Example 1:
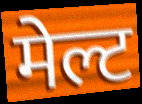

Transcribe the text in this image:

मेल्ट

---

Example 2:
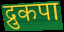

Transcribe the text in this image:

द्रुकपा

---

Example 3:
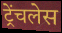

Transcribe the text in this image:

ट्रेंचलेस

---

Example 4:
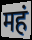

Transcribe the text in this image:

महं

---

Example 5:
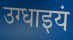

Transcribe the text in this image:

उग्धाइयं